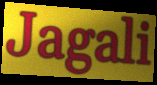
Jagali